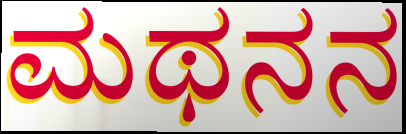
ಮಥನನ